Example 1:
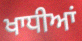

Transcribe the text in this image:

ਖਾਧੀਆਂ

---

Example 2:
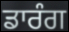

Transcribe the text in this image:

ਡਾਰੰਗ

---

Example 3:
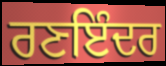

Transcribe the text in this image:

ਰਣਇੰਦਰ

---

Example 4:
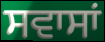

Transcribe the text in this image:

ਸਵਾਸਾਂ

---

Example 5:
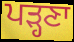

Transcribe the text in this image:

ਪੜ੍ਹਣਾ